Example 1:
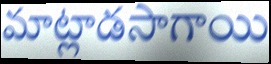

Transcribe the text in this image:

మాట్లాడసాగాయి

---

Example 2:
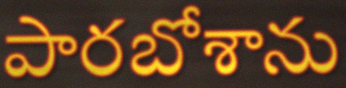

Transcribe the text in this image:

పారబోశాను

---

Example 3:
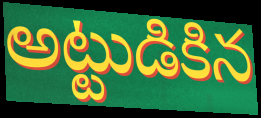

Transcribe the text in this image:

అట్టుడికిన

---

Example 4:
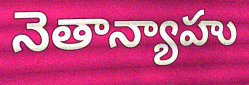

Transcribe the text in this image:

నెతాన్యాహు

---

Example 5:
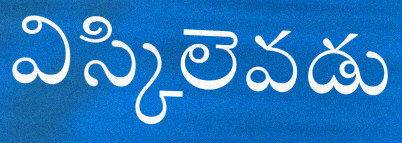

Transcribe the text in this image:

విస్కిలెవడు